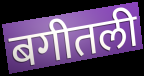
बगीतली